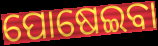
ପୋଷେଇବା